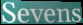
Sevens